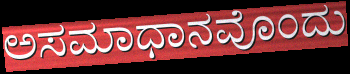
ಅಸಮಾಧಾನವೊಂದು